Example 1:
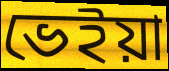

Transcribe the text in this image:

ভেইয়া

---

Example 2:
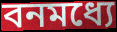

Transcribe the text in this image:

বনমধ্যে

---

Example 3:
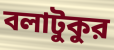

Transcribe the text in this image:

বলাটুকুর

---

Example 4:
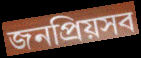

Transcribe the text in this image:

জনপ্রিয়সব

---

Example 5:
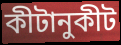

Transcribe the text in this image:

কীটানুকীট